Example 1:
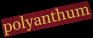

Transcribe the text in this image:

polyanthum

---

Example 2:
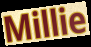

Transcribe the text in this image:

Millie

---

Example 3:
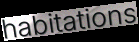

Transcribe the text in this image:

habitations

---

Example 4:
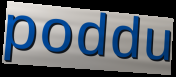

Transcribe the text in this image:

poddu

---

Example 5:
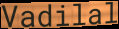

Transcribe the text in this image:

Vadilal